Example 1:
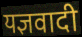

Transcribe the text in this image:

यज्ञवादी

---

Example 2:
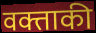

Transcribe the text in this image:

वक्ताकी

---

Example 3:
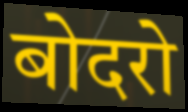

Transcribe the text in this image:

बोदरो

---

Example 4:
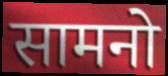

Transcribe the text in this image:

सामनो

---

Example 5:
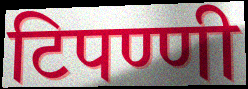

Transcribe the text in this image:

टिपण्णी